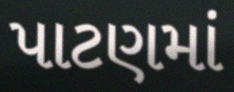
પાટણમાં